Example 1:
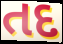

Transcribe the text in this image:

તદ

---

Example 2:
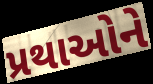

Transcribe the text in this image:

પ્રથાઓને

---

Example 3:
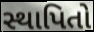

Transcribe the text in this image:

સ્થાપિતો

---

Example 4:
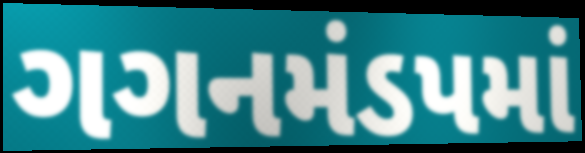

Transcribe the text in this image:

ગગનમંડપમાં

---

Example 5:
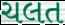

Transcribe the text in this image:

ચલત